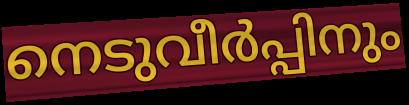
നെടുവീർപ്പിനും